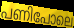
പണിപോലെ